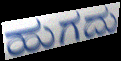
ಹುಗದು